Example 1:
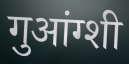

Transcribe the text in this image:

गुआंग्शी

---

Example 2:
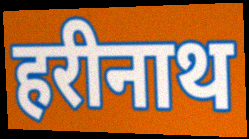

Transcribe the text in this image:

हरीनाथ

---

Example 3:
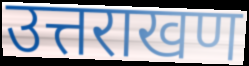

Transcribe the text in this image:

उत्तराखण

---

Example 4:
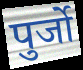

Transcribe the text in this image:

पुर्जो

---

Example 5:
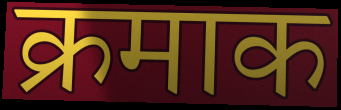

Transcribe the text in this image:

क्रमाक